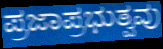
ಪ್ರಜಾಪ್ರಭುತ್ವವು